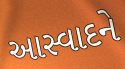
આસ્વાદને